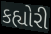
કહ્યોરી